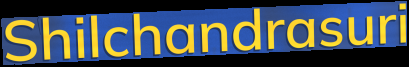
Shilchandrasuri